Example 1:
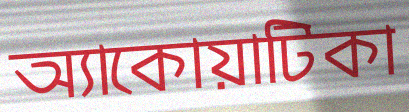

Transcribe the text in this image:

অ্যাকোয়াটিকা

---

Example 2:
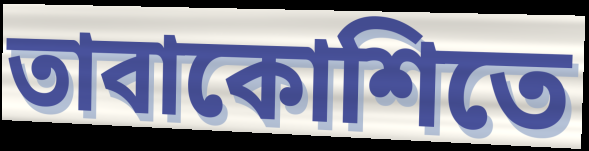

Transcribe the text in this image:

তাবাকোশিতে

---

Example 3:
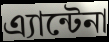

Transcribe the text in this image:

এ্যান্টেনা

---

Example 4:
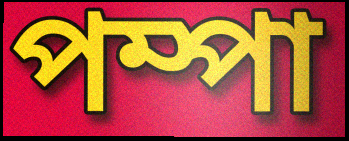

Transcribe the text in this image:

পম্পা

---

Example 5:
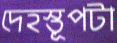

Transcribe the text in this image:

দেহস্তূপটা